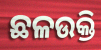
ଛଳଉକ୍ତି